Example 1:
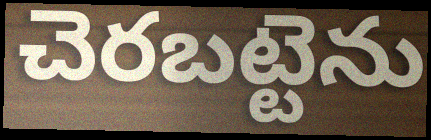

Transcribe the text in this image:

చెరబట్టెను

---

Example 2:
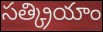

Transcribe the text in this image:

సత్క్రియాం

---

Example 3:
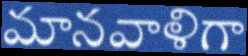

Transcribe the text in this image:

మానవాళిగా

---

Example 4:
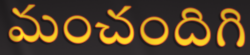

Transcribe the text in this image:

మంచందిగి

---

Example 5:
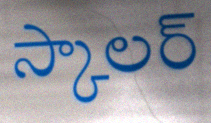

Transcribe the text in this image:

స్కాలర్